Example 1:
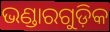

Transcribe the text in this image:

ଭଣ୍ଡାରଗୁଡ଼ିକ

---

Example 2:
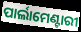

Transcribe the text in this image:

ପାର୍ଲାମେଣ୍ଟାରୀ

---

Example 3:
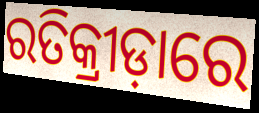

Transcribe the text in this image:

ରତିକ୍ରୀଡ଼ାରେ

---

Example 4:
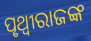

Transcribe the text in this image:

ପୃଥ୍ଵୀରାଜଙ୍କ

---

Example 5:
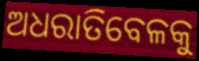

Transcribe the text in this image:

ଅଧରାତିବେଳକୁ